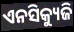
ଏନସିକ୍ୟୁଜି